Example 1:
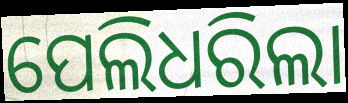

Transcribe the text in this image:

ପେଲିଧରିଲା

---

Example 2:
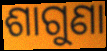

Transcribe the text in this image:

ଶାଗୁଣା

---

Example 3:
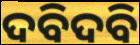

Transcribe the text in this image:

ଦବିଦବି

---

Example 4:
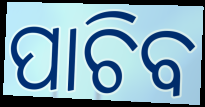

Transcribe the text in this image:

ପାଚିବ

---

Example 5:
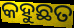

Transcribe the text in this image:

କହୁଛତ